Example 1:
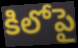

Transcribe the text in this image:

కిలోపై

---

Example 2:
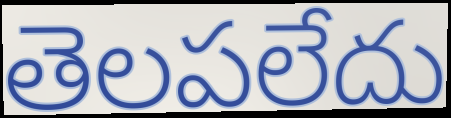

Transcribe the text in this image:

తెలపలేదు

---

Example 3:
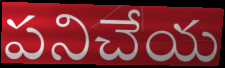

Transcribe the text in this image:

పనిచేయ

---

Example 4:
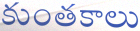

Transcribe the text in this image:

కుంతకాలు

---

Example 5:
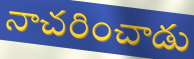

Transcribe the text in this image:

నాచరించాడు